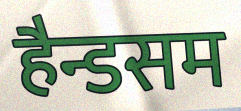
हैन्डसम